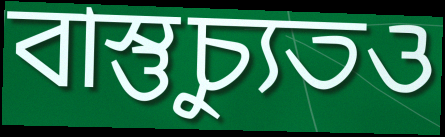
বাস্তুচ্যুতও